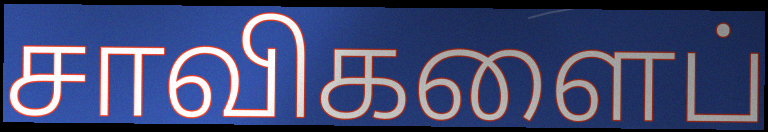
சாவிகளைப்